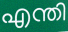
എന്തി